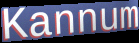
Kannum